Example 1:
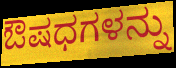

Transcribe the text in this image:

ಔಷಧಗಳನ್ನು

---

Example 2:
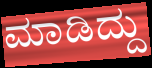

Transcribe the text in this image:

ಮಾಡಿದ್ದು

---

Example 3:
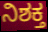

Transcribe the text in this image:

ನಿಶಕ್ತ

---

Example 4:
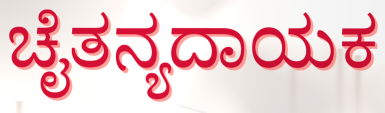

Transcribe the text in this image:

ಚೈತನ್ಯದಾಯಕ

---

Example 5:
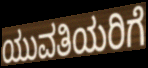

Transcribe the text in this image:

ಯುವತಿಯರಿಗೆ